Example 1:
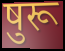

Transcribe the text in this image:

षुरू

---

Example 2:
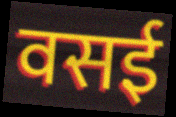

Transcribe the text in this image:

वसई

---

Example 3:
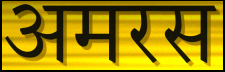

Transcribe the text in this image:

अमरस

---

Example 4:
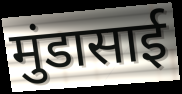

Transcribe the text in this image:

मुंडासाई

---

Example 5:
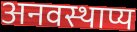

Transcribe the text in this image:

अनवस्थाप्य